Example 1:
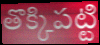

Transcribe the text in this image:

తొక్కిపట్టి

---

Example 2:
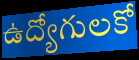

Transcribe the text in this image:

ఉద్యోగులకో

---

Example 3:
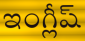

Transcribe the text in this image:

ఇంగ్లీష్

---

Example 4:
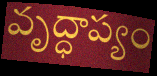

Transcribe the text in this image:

వృద్ధాప్యం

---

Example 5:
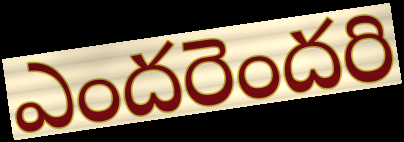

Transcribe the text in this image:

ఎందరెందరి